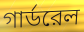
গার্ডরেল